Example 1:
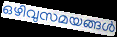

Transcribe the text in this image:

ഒഴിവുസമയങ്ങൾ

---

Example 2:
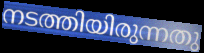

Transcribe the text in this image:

നടത്തിയിരുന്നതു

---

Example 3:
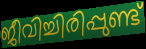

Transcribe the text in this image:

ജീവിച്ചിരിപ്പുണ്ട്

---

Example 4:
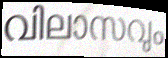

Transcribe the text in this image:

വിലാസവും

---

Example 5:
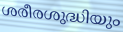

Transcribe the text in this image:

ശരീരശുദ്ധിയും